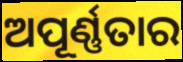
ଅପୂର୍ଣ୍ଣତାର